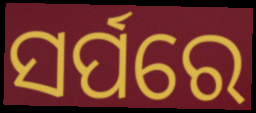
ସର୍ପରେ